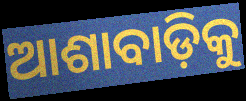
ଆଶାବାଡ଼ିକୁ